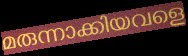
മരുന്നാക്കിയവളെ